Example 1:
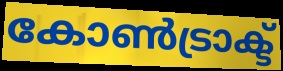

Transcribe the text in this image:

കോൺട്രാക്ട്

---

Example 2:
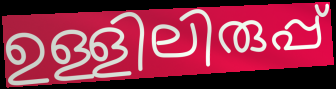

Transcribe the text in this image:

ഉള്ളിലിരുപ്പ്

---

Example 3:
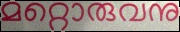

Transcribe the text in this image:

മറ്റൊരുവനു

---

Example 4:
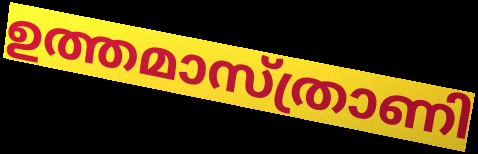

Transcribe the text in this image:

ഉത്തമാസ്ത്രാണി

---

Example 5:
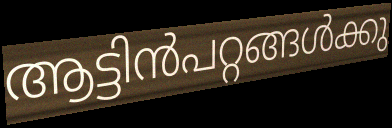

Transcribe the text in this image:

ആട്ടിൻപറ്റങ്ങൾക്കു